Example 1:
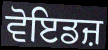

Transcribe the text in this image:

ਵੋਇਡਜ਼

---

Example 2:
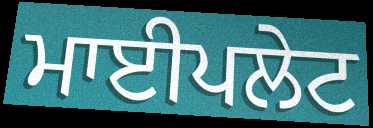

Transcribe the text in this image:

ਮਾਈਪਲੇਟ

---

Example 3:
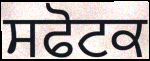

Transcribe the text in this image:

ਸਫੋਟਕ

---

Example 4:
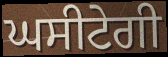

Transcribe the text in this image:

ਘਸੀਟੇਗੀ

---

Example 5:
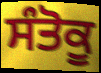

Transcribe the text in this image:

ਸੰਤੋਕੂ